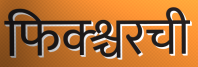
फिक्श्चरची